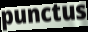
punctus